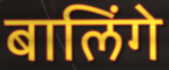
बालिंगे